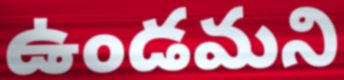
ఉండమని